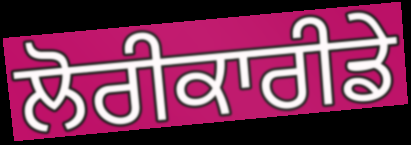
ਲੋਰੀਕਾਰੀਡੇ